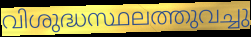
വിശുദ്ധസ്ഥലത്തുവച്ചു